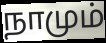
நாமும்